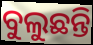
ବୁଲୁଛନ୍ତି